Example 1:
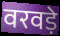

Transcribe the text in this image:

वरवड़े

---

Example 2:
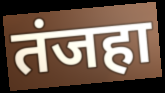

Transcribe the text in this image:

तंजहा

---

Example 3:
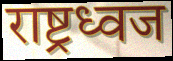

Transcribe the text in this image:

राष्ट्रध्वज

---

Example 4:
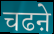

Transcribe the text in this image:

चढऩे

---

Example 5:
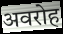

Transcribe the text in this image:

अवरोह